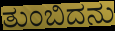
ತುಂಬಿದನು